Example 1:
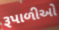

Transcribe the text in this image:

રૂપાળીઓ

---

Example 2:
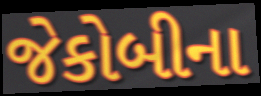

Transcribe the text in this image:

જેકોબીના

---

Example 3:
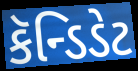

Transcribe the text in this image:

કૅન્ડિડેટ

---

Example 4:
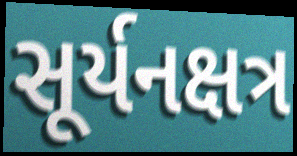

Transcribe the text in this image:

સૂર્યનક્ષત્ર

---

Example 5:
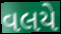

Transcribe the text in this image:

વલયે